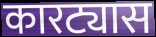
कारट्यास